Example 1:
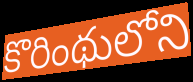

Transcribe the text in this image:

కొరింథులోని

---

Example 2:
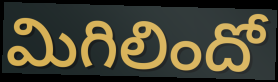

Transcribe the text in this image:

మిగిలిందో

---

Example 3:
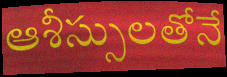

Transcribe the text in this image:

ఆశీస్సులతోనే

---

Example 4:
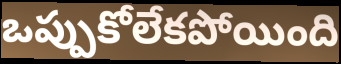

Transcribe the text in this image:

ఒప్పుకోలేకపోయింది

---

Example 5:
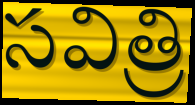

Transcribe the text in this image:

సవిత్రి